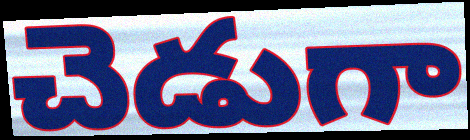
చెడుగా